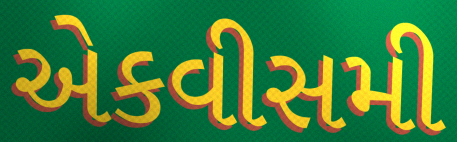
એકવીસમી